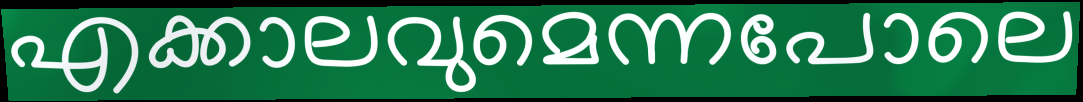
എക്കാലവുമെന്നപോലെ